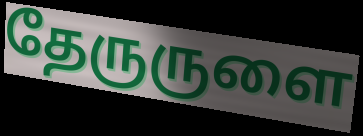
தேருருளை